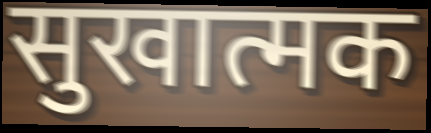
सुखात्मक